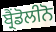
ਬ੍ਰੈਂਡੋਲੀਨੋ